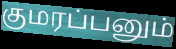
குமரப்பனும்